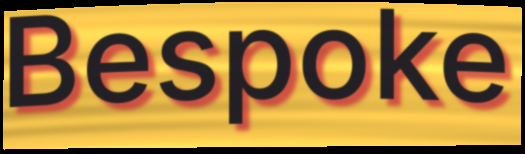
Bespoke